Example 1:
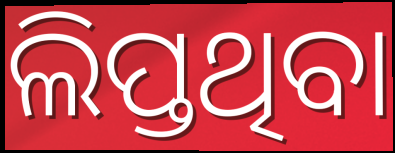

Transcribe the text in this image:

ଲିପ୍ତଥିବା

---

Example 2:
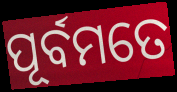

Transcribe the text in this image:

ପୂର୍ବମତେ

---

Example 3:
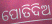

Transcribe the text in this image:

ପୋତିଦିଅ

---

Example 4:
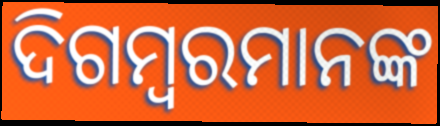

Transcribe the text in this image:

ଦିଗମ୍ବରମାନଙ୍କ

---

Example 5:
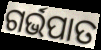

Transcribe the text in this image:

ଗର୍ଭପାତ